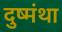
दुष्मंथा